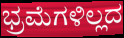
ಭ್ರಮೆಗಳಿಲ್ಲದ